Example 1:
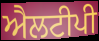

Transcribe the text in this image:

ਐਲਟੀਪੀ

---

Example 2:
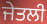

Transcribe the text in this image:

ਜੇਤਲੀ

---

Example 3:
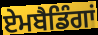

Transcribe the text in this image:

ਏਮਬੈਡਿੰਗਾਂ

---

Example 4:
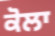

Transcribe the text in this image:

ਕੋਲਾ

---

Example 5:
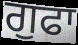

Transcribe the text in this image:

ਗੁਫਾ